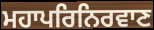
ਮਹਾਪਰਿਨਿਰਵਾਣ